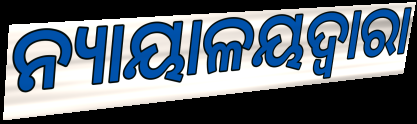
ନ୍ୟାୟାଳୟଦ୍ୱାରା